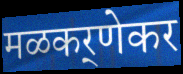
मळकर्णेकर